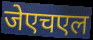
जेएचएल